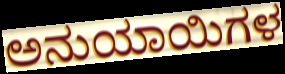
ಅನುಯಾಯಿಗಳ